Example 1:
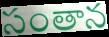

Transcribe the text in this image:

సంతాన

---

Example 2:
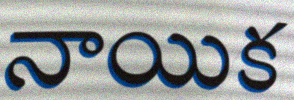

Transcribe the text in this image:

నాయిక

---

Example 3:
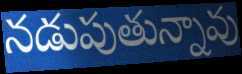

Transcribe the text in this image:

నడుపుతున్నావు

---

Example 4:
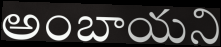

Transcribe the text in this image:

అంబాయని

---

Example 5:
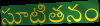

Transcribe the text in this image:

సూటితనం